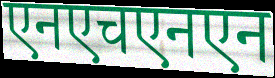
एनएचएनएन